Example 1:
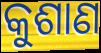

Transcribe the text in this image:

କୁଶାଣ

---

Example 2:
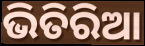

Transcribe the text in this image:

ଭିତିରିଆ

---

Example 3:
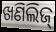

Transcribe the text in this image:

ଖଣିଲିଜ୍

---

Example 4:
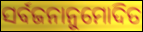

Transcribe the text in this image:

ସର୍ବଜନାନୁମୋଦିତ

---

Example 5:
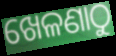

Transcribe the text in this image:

ଖେଳଣାଠୁ